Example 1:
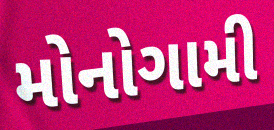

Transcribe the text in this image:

મોનોગામી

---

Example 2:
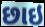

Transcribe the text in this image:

છાઇ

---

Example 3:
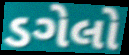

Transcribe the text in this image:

ડગેલો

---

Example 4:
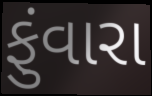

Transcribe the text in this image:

ફુંવારા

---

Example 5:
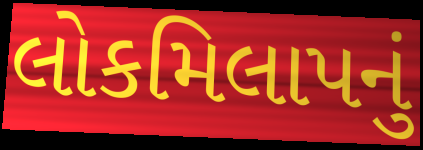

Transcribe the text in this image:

લોકમિલાપનું